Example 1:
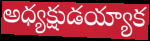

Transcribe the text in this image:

అధ్యక్షుడయ్యాక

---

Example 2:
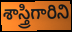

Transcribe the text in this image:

శాస్త్రిగారిని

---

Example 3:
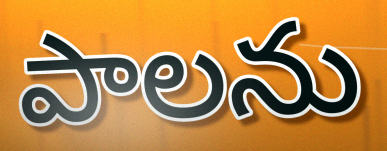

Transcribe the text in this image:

పాలను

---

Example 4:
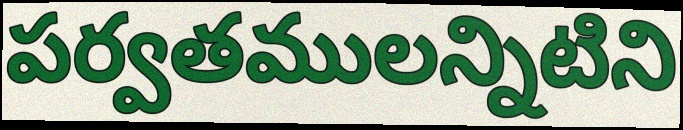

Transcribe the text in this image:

పర్వతములన్నిటిని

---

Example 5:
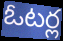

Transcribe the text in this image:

ఓటర్ల